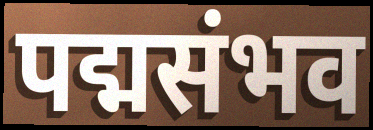
पद्मसंभव